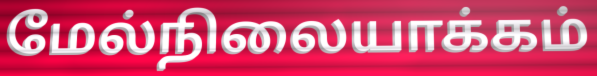
மேல்நிலையாக்கம்